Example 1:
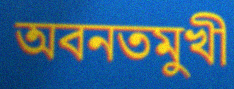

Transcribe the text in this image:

অবনতমুখী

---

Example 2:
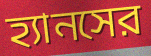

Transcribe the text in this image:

হ্যানসের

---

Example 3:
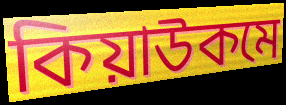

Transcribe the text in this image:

কিয়াউকমে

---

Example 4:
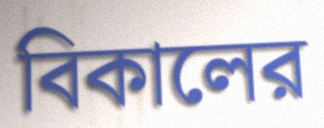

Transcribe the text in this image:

বিকালের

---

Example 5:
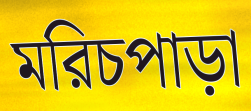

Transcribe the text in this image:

মরিচপাড়া